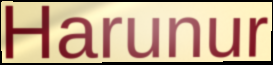
Harunur